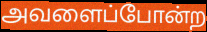
அவளைப்போன்ற